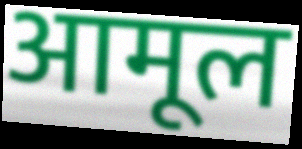
आमूल